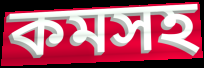
কমসহ